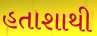
હતાશાથી